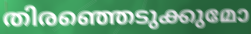
തിരഞ്ഞെടുക്കുമോ